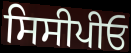
ਸਿਸੀਪੀਓ